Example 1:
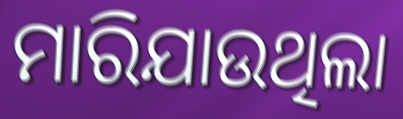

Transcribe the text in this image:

ମାରିଯାଉଥିଲା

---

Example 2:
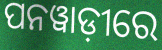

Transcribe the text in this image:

ପନୱାଡ଼ୀରେ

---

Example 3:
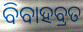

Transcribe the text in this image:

ବିବାହବ୍ରତ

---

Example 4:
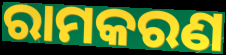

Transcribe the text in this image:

ରାମକରଣ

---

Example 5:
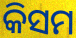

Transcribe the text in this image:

କିସମ